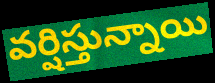
వర్షిస్తున్నాయి